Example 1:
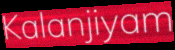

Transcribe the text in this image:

Kalanjiyam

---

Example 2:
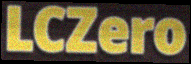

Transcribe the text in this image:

LCZero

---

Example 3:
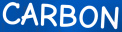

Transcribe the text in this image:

CARBON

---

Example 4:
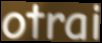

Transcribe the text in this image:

otrai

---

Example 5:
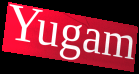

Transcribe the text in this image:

Yugam